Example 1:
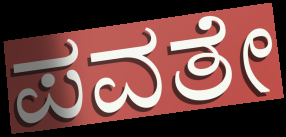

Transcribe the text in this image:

ಪವತೇ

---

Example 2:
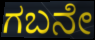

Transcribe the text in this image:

ಗಬನೇ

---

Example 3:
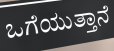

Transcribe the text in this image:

ಒಗೆಯುತ್ತಾನೆ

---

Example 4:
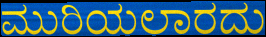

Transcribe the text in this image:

ಮುರಿಯಲಾರದು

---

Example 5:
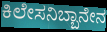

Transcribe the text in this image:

ಕಿಲೇಸನಿಬ್ಬಾನೇನ